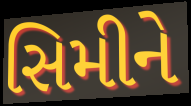
સિમીને